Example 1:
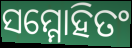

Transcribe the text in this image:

ସମ୍ମୋହିତଂ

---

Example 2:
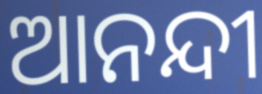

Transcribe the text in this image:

ଆନନ୍ଦୀ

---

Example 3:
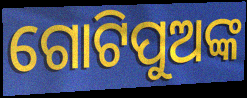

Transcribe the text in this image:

ଗୋଟିପୁଅଙ୍କ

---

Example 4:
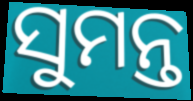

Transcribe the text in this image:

ସୁମନ୍ତ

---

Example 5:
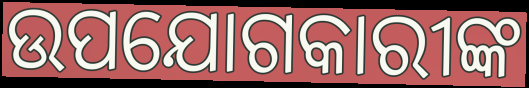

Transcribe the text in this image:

ଉପଯୋଗକାରୀଙ୍କ